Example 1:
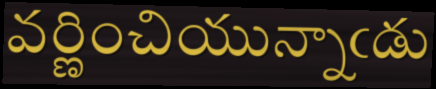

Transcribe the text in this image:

వర్ణించియున్నాఁడు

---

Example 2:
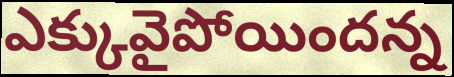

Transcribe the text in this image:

ఎక్కువైపోయిందన్న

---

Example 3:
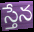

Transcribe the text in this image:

స్తేన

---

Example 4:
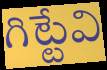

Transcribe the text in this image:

గిట్టేవి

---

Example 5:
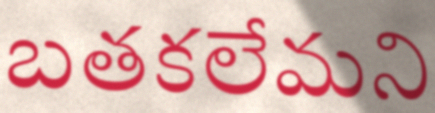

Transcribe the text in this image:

బతకలేమని